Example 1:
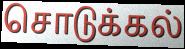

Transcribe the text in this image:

சொடுக்கல்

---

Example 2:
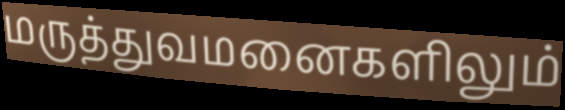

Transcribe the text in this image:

மருத்துவமனைகளிலும்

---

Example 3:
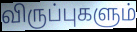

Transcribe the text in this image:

விருப்புகளும்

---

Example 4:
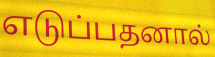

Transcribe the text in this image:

எடுப்பதனால்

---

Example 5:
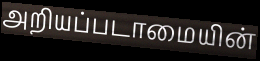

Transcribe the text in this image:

அறியப்படாமையின்